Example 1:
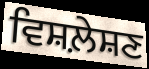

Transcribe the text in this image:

ਵਿਸ਼ਲ਼ੇਸ਼ਣ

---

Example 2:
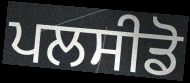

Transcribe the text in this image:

ਪਲਸੀਡੋ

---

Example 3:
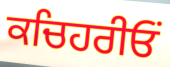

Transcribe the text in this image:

ਕਚਿਹਰੀਓਂ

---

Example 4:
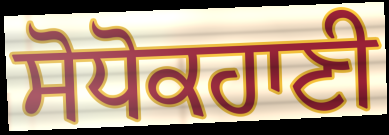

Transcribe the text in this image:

ਸੋਧੋਕਹਾਣੀ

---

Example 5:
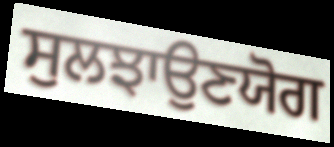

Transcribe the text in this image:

ਸੁਲਝਾਉਣਯੋਗ